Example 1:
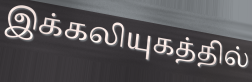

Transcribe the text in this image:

இக்கலியுகத்தில்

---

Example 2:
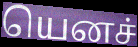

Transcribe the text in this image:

யெனச்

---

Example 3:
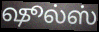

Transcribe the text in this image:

ஷூல்ஸ்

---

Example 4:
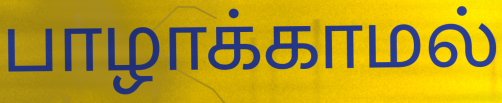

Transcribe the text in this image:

பாழாக்காமல்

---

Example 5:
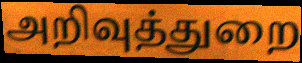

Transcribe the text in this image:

அறிவுத்துறை